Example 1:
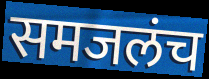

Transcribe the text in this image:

समजलंच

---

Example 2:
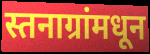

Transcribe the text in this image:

स्तनाग्रांमधून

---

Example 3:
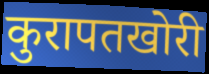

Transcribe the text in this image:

कुरापतखोरी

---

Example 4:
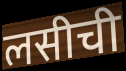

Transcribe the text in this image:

लसीची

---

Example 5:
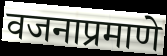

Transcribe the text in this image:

वजनाप्रमाणे